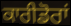
ਕਾਰੀਡੋਰਾਂ